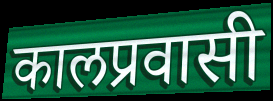
कालप्रवासी